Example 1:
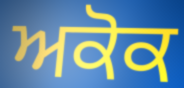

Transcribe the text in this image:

ਅਕੋਕ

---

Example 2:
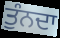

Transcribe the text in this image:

ਤੁੰਨਦਾ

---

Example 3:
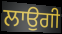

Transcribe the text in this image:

ਲਾਉਗੀ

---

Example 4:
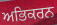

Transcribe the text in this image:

ਅਭਿਕਰਨ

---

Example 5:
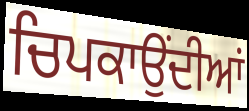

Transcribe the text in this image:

ਚਿਪਕਾਉਂਦੀਆਂ